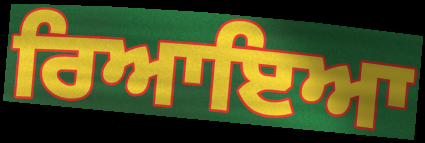
ਰਿਆਇਆ